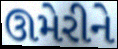
ઊમેરીને